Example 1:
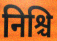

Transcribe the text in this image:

निश्चि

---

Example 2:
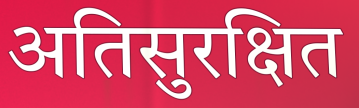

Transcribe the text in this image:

अतिसुरक्षित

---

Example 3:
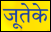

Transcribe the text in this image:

जूतेके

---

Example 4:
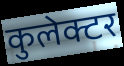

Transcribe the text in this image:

कुलेक्टर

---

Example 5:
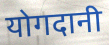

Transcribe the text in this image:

योगदानी